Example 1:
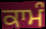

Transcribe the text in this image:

ਕਾਮੰ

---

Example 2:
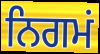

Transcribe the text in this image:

ਨਿਗਮਂ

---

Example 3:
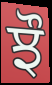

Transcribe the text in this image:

ਝੌ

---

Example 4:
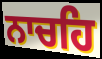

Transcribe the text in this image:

ਨਾਚਹਿ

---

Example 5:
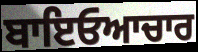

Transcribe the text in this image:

ਬਾਇਓਆਚਾਰ